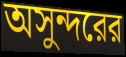
অসুন্দরের